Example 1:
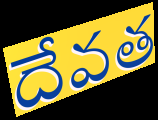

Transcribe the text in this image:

దేవత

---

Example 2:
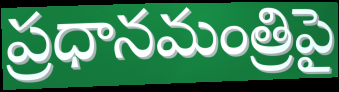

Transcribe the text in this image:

ప్రధానమంత్రిపై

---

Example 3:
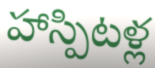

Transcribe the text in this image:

హాస్పిటళ్ల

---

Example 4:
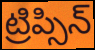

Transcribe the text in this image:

ట్రిప్సిన్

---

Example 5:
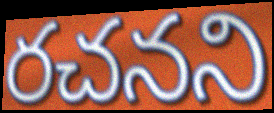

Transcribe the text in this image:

రచనని